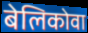
बेलिकोवा